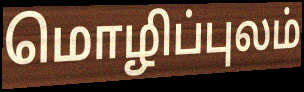
மொழிப்புலம்